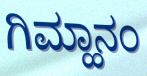
ಗಿಮ್ಹಾನಂ